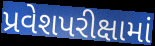
પ્રવેશપરીક્ષામાં